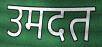
उमदत